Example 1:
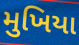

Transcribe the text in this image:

મુખિયા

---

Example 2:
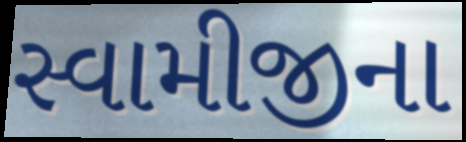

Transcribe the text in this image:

સ્વામીજીના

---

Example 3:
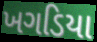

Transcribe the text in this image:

ખગડિયા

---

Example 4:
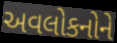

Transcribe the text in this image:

અવલોકનોને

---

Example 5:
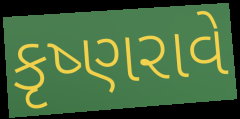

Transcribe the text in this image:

કૃષ્ણરાવે